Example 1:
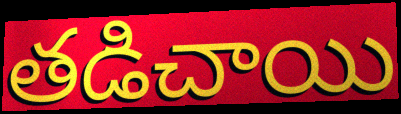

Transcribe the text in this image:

తడిచాయి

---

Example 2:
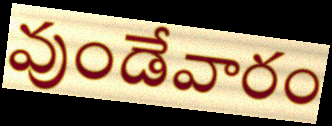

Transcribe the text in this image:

వుండేవారం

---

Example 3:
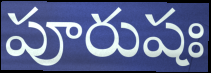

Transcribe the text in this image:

పూరుషః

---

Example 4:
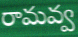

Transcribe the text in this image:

రామవ్వ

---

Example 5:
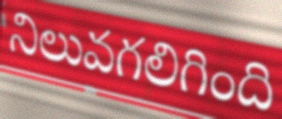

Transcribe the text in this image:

నిలువగలిగింది